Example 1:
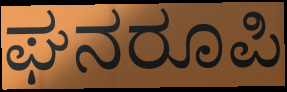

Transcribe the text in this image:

ಘನರೂಪಿ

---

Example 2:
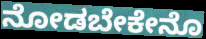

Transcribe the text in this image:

ನೋಡಬೇಕೇನೊ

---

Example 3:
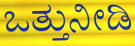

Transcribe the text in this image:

ಒತ್ತುನೀಡಿ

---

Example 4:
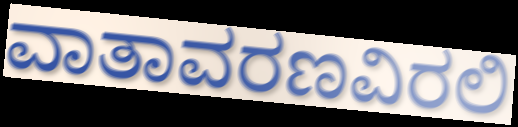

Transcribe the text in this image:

ವಾತಾವರಣವಿರಲಿ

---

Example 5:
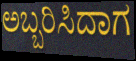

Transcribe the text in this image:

ಅಬ್ಬರಿಸಿದಾಗ